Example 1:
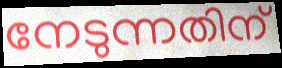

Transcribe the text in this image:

നേടുന്നതിന്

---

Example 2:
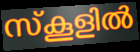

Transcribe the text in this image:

സ്‌കൂളിൽ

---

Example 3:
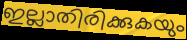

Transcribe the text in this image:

ഇല്ലാതിരിക്കുകയും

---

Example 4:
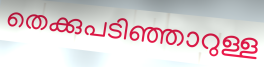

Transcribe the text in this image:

തെക്കുപടിഞ്ഞാറുള്ള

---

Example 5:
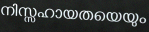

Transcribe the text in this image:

നിസ്സഹായതയെയും